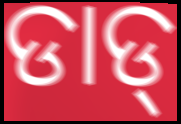
ଡାଡ୍